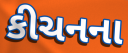
કીચનના